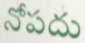
నోపదు